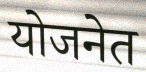
योजनेत